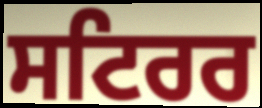
ਸਟਿਰਰ